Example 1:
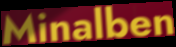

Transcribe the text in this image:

Minalben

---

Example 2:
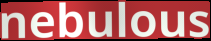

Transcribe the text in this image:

nebulous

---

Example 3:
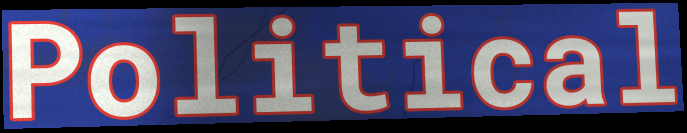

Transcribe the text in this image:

Political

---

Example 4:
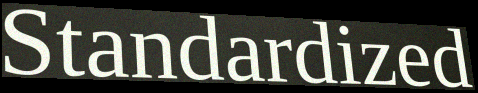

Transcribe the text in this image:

Standardized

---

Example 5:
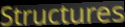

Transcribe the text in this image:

Structures